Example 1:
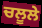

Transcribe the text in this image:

ਚਲੂਲੇ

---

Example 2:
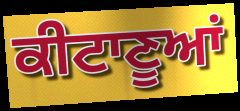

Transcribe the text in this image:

ਕੀਟਾਣੂਆਂ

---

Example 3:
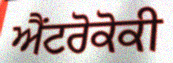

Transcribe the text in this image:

ਐਂਟਰੋਕੋਕੀ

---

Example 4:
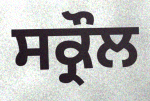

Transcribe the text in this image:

ਸਕ੍ਰੌਲ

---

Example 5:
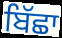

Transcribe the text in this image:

ਬਿੱਛਾ